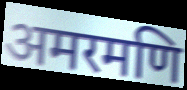
अमरमणि